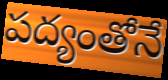
పద్యంతోనే